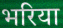
भरिया